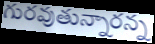
గురవుతున్నారన్న